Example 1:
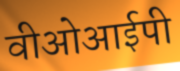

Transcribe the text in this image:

वीओआईपी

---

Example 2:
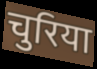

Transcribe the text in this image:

चुरिया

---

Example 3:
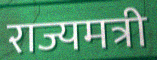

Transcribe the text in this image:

राज्यमत्री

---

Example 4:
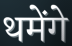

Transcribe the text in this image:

थमेंगे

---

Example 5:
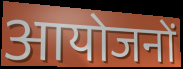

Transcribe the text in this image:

आयोजनों